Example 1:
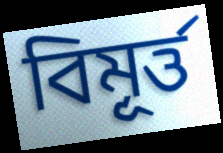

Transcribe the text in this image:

বিমূৰ্ত্ত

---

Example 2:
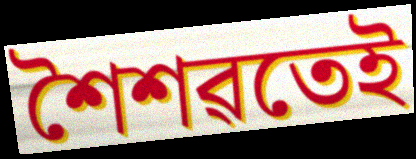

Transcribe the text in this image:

শৈশৱতেই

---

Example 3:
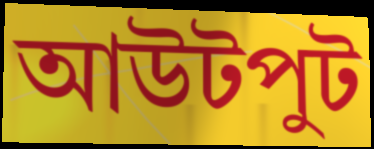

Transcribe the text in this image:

আউটপুট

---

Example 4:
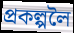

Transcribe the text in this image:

প্ৰকল্পলৈ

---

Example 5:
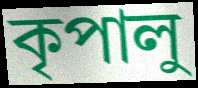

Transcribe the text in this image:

কৃপালু